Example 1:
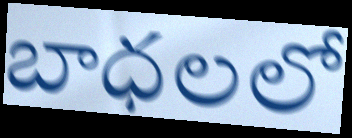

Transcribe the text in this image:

బాధలలో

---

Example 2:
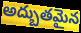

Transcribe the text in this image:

అద్బుతమైన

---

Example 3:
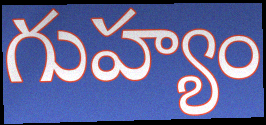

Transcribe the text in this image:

గుహ్యం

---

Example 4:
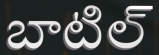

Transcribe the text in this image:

బాటిల్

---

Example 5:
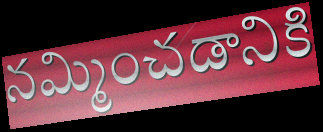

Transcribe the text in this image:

నమ్మించడానికి